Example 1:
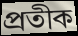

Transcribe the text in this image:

প্ৰতীক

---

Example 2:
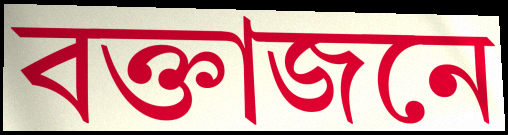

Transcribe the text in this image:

বক্তাজনে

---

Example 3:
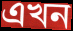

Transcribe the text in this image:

এখন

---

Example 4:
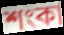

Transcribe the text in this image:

শংকা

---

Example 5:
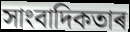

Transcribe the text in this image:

সাংবাদিকতাৰ